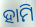
ହାମି